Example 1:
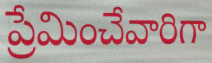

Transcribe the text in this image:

ప్రేమించేవారిగా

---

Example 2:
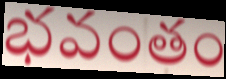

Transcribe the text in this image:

భవంతం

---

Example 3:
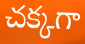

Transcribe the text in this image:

చక్కగా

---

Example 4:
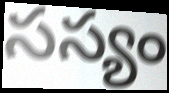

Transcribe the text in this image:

సస్యం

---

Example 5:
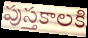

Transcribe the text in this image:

పుస్తకాలకి